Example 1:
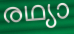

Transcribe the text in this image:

രഥ്യാ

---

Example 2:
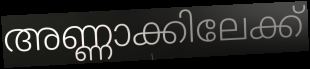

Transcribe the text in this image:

അണ്ണാക്കിലേക്ക്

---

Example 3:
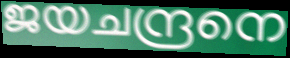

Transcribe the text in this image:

ജയചന്ദ്രനെ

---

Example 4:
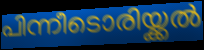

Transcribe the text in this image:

പിന്നീടൊരിയ്ക്കൽ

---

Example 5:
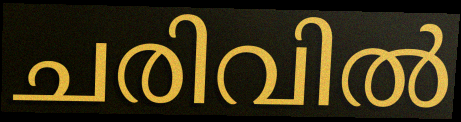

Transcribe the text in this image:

ചരിവിൽ